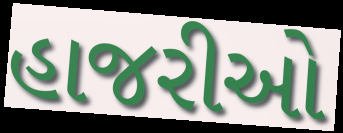
હાજરીઓ